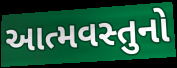
આત્મવસ્તુનો